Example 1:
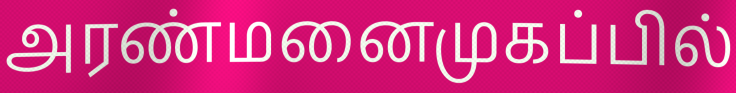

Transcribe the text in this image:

அரண்மனைமுகப்பில்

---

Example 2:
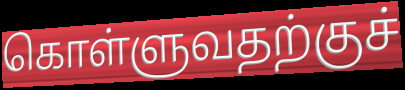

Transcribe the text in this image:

கொள்ளுவதற்குச்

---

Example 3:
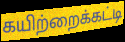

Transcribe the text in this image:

கயிற்றைக்கட்டி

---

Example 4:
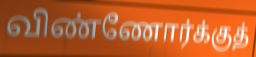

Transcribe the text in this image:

விண்ணோர்க்குத்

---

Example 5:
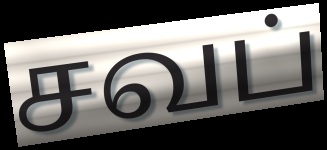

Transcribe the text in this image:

சவப்